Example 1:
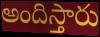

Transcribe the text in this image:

అందిస్తారు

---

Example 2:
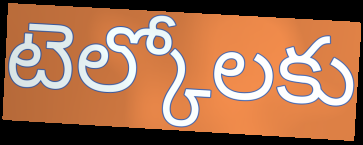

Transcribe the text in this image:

టెల్కోలకు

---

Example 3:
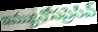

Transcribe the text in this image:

ఇమ్యునోసప్రెసివ్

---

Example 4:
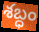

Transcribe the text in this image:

శబ్ధం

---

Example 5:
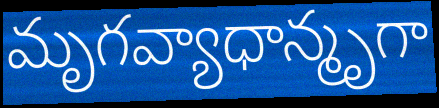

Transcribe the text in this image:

మృగవ్యాధాన్మృగా